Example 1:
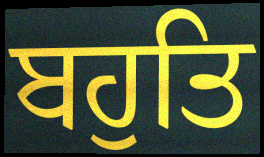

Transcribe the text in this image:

ਬਹੁਤਿ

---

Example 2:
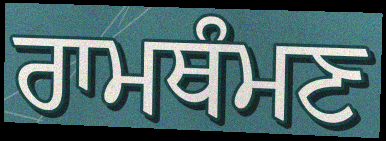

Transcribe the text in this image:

ਰਾਮਥੰਮਣ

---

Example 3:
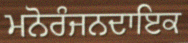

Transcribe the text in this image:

ਮਨੋਰੰਜਨਦਾਇਕ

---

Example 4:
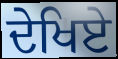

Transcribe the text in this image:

ਦੇਖਿਏ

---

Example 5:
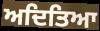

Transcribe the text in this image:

ਅਦਿਤਿਆ